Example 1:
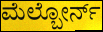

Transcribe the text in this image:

ಮೆಲ್ಬೋರ್ನ್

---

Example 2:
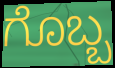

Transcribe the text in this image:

ಗೊಬ್ಬ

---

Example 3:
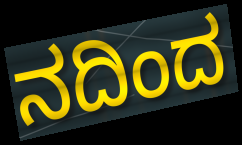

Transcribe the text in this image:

ನದಿಂದ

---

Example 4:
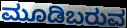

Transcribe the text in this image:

ಮೂಡಿಬರುವ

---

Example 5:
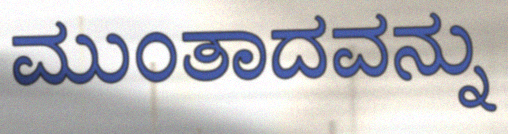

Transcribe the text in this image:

ಮುಂತಾದವನ್ನು